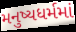
મનુષ્યધર્મમાં